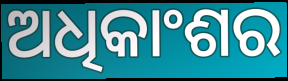
ଅଧିକାଂଶର